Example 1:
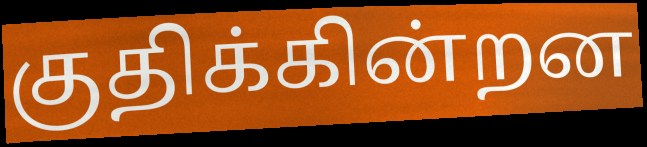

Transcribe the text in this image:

குதிக்கின்றன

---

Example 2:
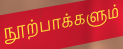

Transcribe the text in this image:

நூற்பாக்களும்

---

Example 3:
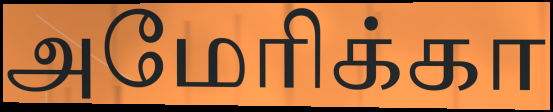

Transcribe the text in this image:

அமேரிக்கா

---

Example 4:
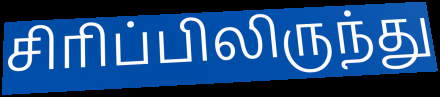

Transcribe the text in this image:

சிரிப்பிலிருந்து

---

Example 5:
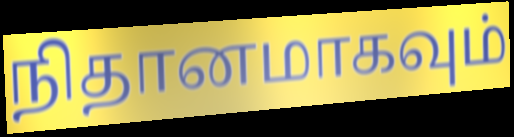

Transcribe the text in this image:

நிதானமாகவும்